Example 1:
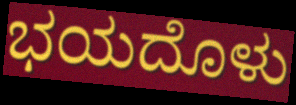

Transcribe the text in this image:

ಭಯದೊಳು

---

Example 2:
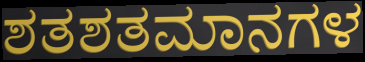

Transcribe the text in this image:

ಶತಶತಮಾನಗಳ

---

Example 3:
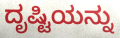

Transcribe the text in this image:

ದೃಷ್ಟಿಯನ್ನು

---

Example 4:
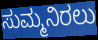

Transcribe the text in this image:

ಸುಮ್ಮನಿರಲು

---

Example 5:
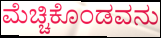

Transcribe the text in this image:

ಮೆಚ್ಚಿಕೊಂಡವನು